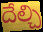
దేల్చి